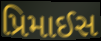
પ્રિમાઈસ